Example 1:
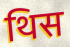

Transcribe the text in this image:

थिस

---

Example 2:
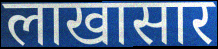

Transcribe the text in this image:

लाखासार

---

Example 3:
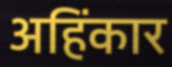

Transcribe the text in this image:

अहिंकार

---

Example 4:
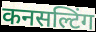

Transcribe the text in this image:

कनसल्टिंग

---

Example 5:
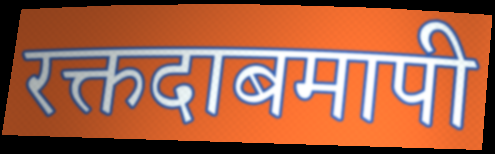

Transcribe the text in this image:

रक्तदाबमापी